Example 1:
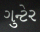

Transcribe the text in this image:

ગુન્ટેર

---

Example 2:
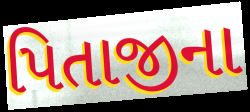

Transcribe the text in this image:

પિતાજીના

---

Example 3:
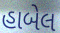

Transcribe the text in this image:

હાબેલ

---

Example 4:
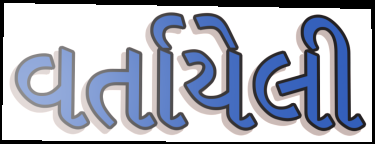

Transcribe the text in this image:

વર્તાયેલી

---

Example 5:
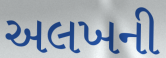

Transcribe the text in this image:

અલખની